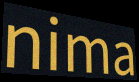
nima